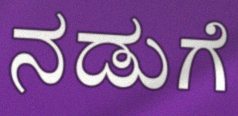
ನಡುಗೆ